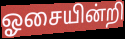
ஓசையின்றி